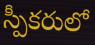
స్పీకరులో